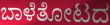
ಬಾಳೆತೋಟದ